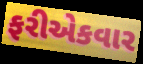
ફરીએકવાર